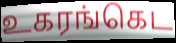
உகரங்கெட